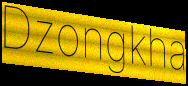
Dzongkha